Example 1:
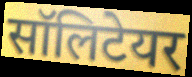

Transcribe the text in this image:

सॉलिटेयर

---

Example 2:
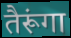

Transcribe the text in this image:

तैरूंगा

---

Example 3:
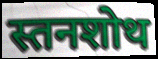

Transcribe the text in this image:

स्तनशोथ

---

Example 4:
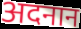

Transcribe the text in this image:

अदनान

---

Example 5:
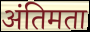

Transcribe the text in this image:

अंतिमता